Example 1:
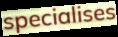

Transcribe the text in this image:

specialises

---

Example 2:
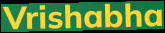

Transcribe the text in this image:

Vrishabha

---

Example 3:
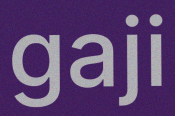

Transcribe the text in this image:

gaji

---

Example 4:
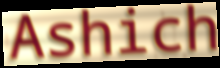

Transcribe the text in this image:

Ashich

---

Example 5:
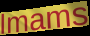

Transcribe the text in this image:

Imams